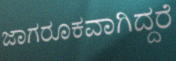
ಜಾಗರೂಕವಾಗಿದ್ದರೆ